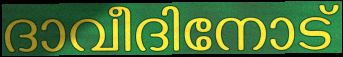
ദാവീദിനോട്